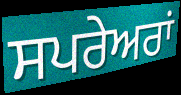
ਸਪਰੇਅਰਾਂ